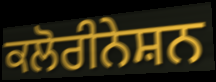
ਕਲੋਰੀਨੇਸ਼ਨ